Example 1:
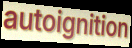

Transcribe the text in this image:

autoignition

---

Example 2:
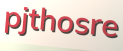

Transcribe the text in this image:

pjthosre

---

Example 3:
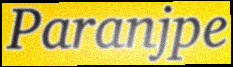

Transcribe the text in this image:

Paranjpe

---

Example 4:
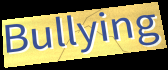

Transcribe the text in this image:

Bullying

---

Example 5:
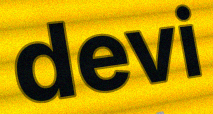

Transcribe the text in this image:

devi